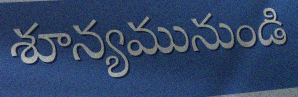
శూన్యమునుండి